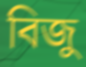
বিজু